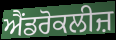
ਐਂਡਰੋਕਲੀਜ਼